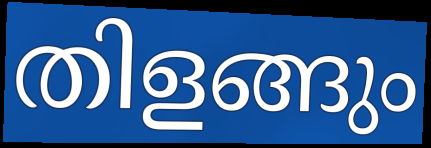
തിളങ്ങും